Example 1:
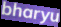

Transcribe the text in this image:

bharyu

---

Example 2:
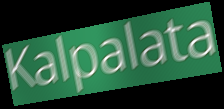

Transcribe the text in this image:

Kalpalata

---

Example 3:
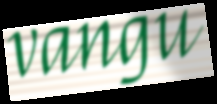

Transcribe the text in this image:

vangu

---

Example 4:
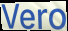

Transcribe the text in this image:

Vero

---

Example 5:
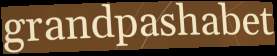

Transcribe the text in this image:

grandpashabet